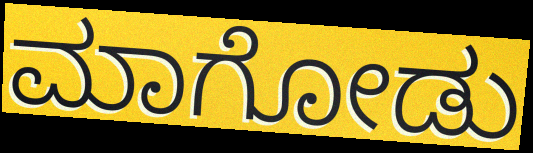
ಮಾಗೋಡು